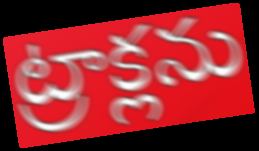
ట్రాక్లను